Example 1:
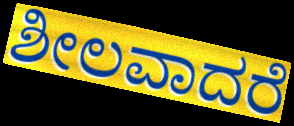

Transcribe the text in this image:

ಶೀಲವಾದರೆ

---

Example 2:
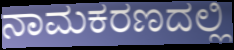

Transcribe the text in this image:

ನಾಮಕರಣದಲ್ಲಿ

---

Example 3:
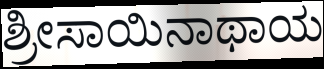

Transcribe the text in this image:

ಶ್ರೀಸಾಯಿನಾಥಾಯ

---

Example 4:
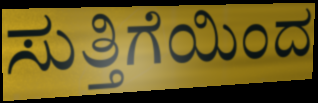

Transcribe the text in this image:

ಸುತ್ತಿಗೆಯಿಂದ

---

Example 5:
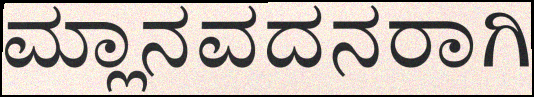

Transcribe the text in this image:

ಮ್ಲಾನವದನರಾಗಿ